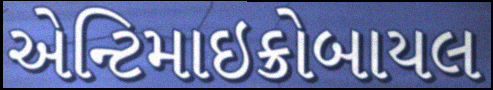
એન્ટિમાઇક્રોબાયલ